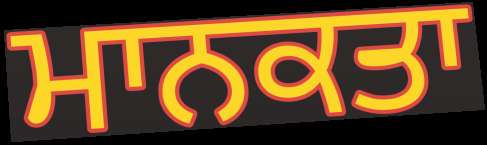
ਮਾਨਕਤਾ